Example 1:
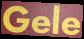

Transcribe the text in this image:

Gele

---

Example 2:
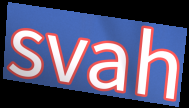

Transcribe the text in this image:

svah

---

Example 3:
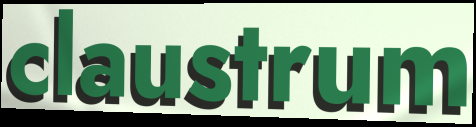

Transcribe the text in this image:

claustrum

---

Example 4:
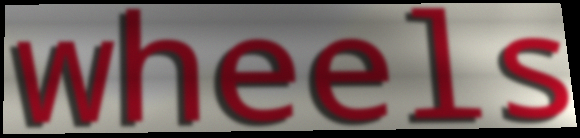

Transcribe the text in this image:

wheels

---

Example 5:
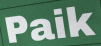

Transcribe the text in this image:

Paik